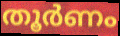
തൂർണം